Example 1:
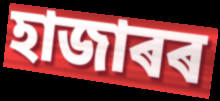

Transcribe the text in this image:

হাজাৰৰ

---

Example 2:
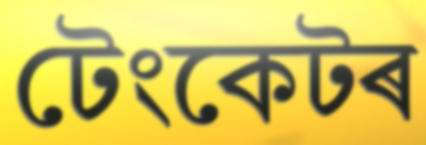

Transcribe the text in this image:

টেংকেটৰ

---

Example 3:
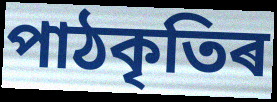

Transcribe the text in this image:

পাঠকৃতিৰ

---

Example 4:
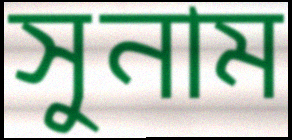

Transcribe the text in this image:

সুনাম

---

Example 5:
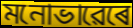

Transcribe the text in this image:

মনোভাৱেৰে